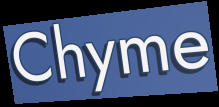
Chyme